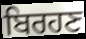
ਬਿਰਹਣ